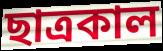
ছাত্রকাল